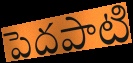
పెదపాటి